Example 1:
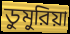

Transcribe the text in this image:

ডুমুরিয়া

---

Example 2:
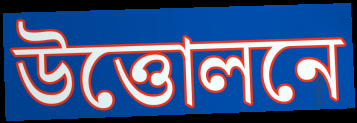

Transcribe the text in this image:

উত্তোলনে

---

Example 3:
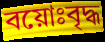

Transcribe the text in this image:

বয়োঃবৃদ্ধ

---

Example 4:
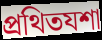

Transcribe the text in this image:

প্রথিতযশা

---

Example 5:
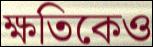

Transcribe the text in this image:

ক্ষতিকেও